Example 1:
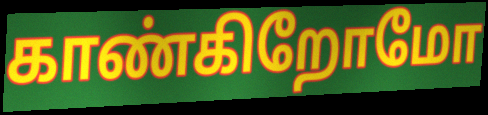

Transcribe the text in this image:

காண்கிறோமோ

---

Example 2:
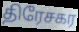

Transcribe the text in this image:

திரேசகர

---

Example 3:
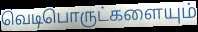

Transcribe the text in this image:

வெடிபொருட்களையும்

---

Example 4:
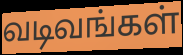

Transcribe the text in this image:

வடிவங்கள்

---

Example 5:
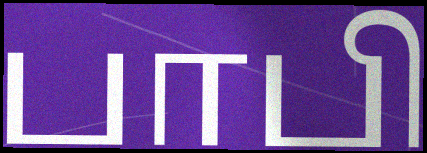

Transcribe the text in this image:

பாபி